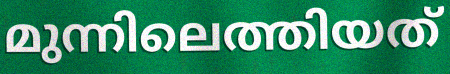
മുന്നിലെത്തിയത്